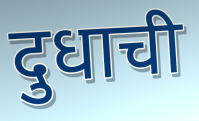
दुधाची